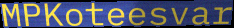
MPKoteesvar